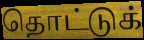
தொட்டுக்